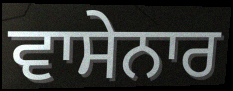
ਵਾਸੇਨਾਰ